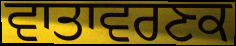
ਵਾਤਾਵਰਣਕ